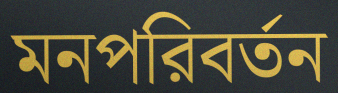
মনপরিবর্তন